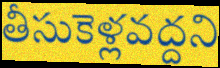
తీసుకెళ్లవద్దని